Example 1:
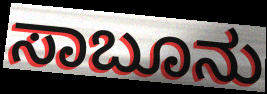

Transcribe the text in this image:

ಸಾಬೂನು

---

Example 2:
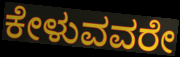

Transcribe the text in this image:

ಕೇಳುವವರೇ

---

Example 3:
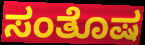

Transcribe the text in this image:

ಸಂತೊಷ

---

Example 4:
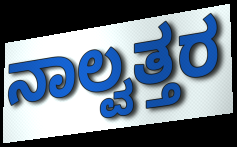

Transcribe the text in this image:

ನಾಲ್ವತ್ತರ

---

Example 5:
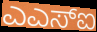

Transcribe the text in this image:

ಎಎಸ್ಐ